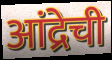
आंद्रेची